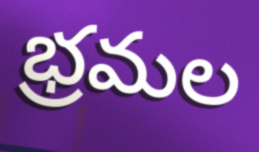
భ్రమల